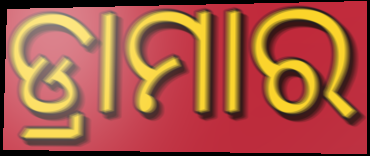
ଡ୍ରାମାର